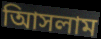
আিসলাম